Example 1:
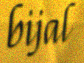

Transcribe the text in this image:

bijal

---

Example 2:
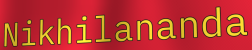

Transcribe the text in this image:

Nikhilananda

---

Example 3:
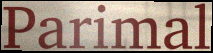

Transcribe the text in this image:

Parimal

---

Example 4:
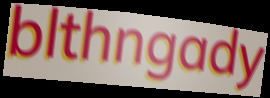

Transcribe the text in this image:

blthngady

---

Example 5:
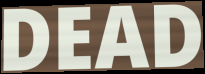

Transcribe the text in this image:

DEAD